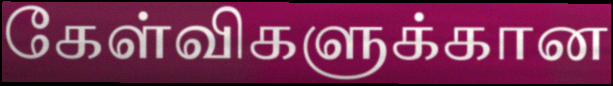
கேள்விகளுக்கான